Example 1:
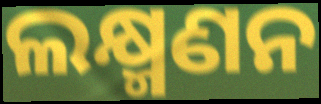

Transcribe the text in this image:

ଲକ୍ଷ୍ମଣନ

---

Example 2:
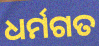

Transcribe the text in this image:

ଧର୍ମଗତ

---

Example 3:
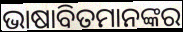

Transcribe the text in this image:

ଭାଷାବିତମାନଙ୍କର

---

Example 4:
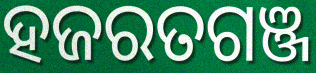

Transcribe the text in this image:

ହଜରତଗଞ୍ଜ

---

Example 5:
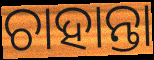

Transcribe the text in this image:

ଚାହାନ୍ତା